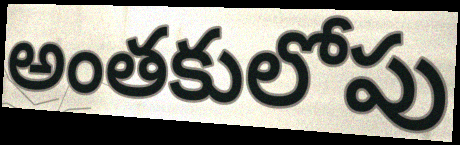
అంతకులోపు